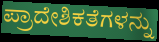
ಪ್ರಾದೇಶಿಕತೆಗಳನ್ನು